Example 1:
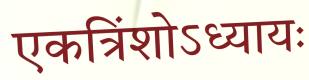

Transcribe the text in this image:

एकत्रिंशोऽध्यायः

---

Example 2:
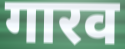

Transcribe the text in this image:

गारव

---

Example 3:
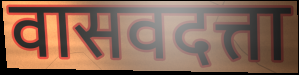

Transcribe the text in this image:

वासवदत्ता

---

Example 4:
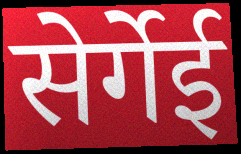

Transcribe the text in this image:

सेर्गेई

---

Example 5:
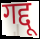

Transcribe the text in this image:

गद्दू